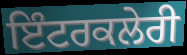
ਇੰਟਰਕਲੇਰੀ